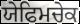
ਯੇਫਿਮਚੇਕ